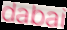
dabai